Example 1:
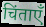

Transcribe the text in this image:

चिंताएँ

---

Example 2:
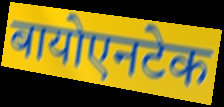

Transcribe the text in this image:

बायोएनटेक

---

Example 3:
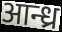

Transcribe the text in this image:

आन्ध्र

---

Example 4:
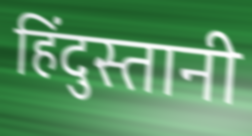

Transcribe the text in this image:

हिंदुस्तानी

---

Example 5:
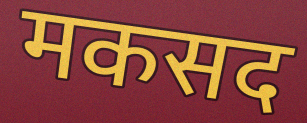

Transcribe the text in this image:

मकसद